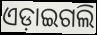
ଏଡ଼ାଇଗଲି